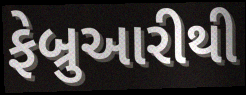
ફેબ્રુઆરીથી